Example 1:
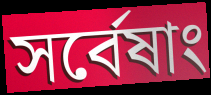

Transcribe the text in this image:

সর্বেষাং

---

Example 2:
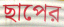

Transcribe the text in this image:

ছাপের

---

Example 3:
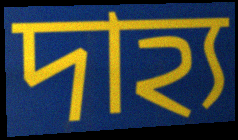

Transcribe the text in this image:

দাহ্য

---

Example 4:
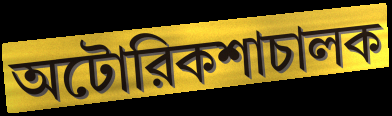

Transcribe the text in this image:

অটোরিকশাচালক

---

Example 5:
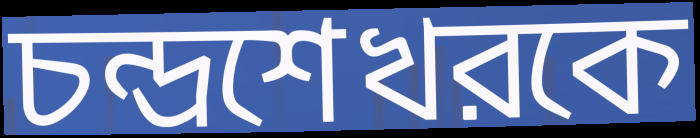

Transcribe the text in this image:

চন্দ্রশেখরকে